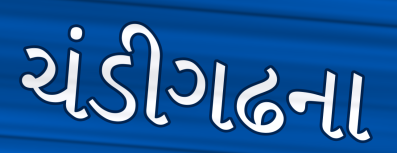
ચંડીગઢના